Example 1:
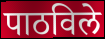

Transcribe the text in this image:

पाठविले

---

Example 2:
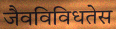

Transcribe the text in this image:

जैवविविधतेस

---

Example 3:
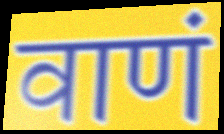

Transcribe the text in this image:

वाणं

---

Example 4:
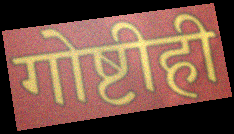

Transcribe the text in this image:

गोष्टीही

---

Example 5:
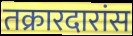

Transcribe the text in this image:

तक्रारदारांस